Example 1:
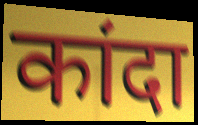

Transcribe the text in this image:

कांदा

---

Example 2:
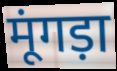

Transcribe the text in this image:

मूंगड़ा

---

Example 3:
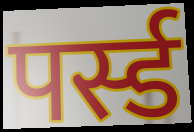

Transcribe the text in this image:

पर्स्ड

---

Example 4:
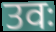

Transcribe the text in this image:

उवः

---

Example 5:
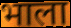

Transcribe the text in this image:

भाला